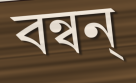
বন্বন্